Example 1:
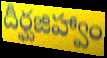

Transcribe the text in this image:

దీర్ఘజిహ్వాం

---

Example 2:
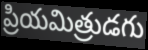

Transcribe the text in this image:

ప్రియమిత్రుడగు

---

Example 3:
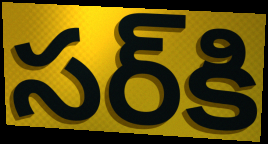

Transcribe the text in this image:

సర్‌కి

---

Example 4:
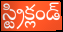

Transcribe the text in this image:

స్ట్రిక్లండ్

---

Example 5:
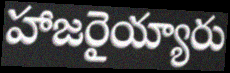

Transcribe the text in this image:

హాజరైయ్యారు